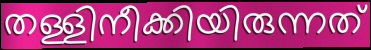
തള്ളിനീക്കിയിരുന്നത്